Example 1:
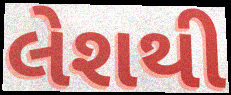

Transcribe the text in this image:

લેશથી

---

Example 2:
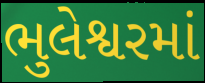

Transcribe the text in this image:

ભુલેશ્વરમાં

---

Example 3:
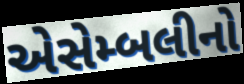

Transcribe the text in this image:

એસેમ્બલીનો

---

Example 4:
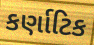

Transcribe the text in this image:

કર્ણાટિક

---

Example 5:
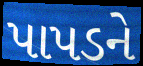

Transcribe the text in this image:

પાપડને